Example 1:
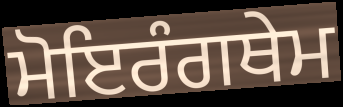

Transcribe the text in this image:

ਮੋਇਰੰਗਥੇਮ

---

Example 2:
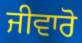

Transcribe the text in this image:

ਜੀਵਾਰੋ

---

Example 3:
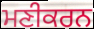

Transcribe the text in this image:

ਮਣੀਕਰਨ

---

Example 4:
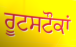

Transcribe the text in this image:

ਰੂਟਸਟੌਕਾਂ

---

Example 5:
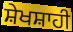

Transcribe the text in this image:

ਸ਼ੇਖਸ਼ਾਹੀ